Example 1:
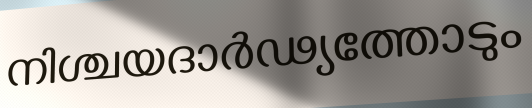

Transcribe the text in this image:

നിശ്ചയദാർഢ്യത്തോടും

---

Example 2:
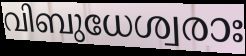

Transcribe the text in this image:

വിബുധേശ്വരാഃ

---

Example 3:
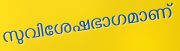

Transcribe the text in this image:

സുവിശേഷഭാഗമാണ്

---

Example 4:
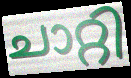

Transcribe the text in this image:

ചാറ്റി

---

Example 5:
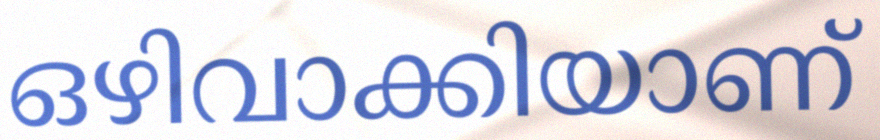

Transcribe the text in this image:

ഒഴിവാക്കിയാണ്